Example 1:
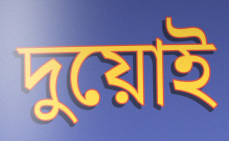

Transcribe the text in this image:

দুয়োই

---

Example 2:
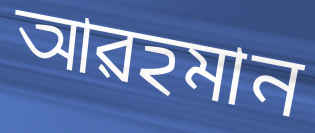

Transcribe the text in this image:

আৱহমান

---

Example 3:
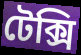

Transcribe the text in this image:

টেক্সি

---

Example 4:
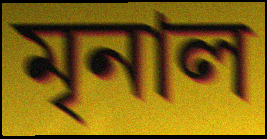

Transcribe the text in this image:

মৃনাল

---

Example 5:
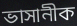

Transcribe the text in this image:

ভাসানীক